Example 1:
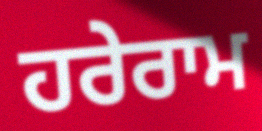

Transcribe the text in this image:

ਹਰੇਰਾਮ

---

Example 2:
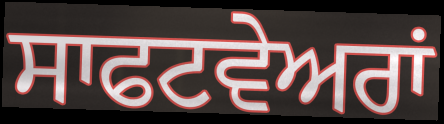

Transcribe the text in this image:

ਸਾਫਟਵੇਅਰਾਂ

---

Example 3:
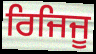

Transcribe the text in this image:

ਰਿਜਿਜੂ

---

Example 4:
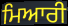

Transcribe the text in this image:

ਮਿਆਰੀ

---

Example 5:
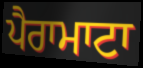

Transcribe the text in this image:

ਪੈਰਾਮਾਟਾ